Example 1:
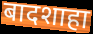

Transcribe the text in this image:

बादशाहा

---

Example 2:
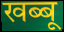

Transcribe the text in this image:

खब्‍बू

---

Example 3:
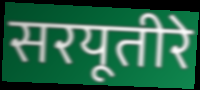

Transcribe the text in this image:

सरयूतीरे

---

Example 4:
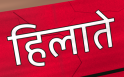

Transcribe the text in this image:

हिलाते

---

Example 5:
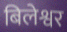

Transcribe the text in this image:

बिलेश्वर